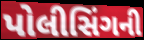
પોલીસિંગની